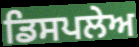
ਡਿਸਪਲੇਅ